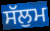
ਸੱਲੁਮ